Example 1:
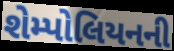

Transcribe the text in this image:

શેમ્પોલિયનની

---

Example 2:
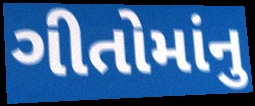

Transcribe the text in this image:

ગીતોમાંનુ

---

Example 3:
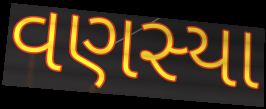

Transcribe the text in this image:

વણસ્યા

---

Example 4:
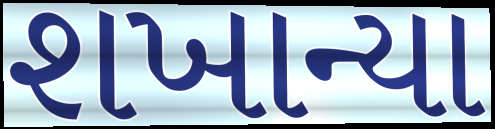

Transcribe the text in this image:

શખાન્યા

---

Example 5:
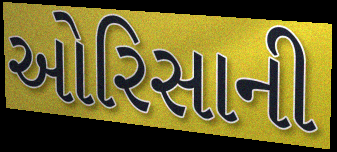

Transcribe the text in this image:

ઓરિસાની